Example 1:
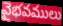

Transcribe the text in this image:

వైభవములు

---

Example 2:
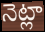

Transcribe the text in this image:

నెట్లా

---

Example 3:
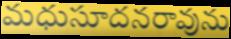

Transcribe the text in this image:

మధుసూదనరావును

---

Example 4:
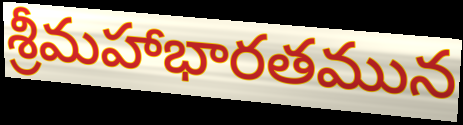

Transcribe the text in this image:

శ్రీమహాభారతమున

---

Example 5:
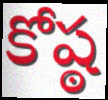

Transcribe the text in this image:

కోష్ఠ